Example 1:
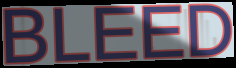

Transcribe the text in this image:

BLEED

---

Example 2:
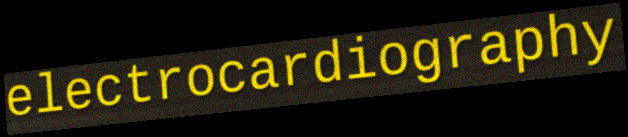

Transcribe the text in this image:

electrocardiography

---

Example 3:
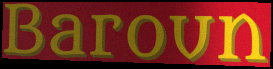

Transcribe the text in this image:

Baroun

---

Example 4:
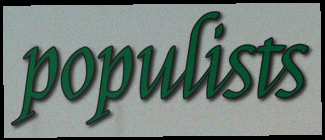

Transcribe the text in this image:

populists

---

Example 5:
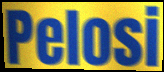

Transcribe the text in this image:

Pelosi